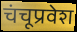
चंचूप्रवेश